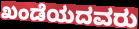
ಖಂಡೆಯದವರು